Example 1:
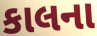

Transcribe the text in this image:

કાલના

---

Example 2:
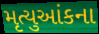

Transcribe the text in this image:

મૃત્યુઆંકના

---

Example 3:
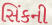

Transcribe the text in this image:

સિંકની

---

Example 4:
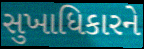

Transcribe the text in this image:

સુખાધિકારને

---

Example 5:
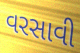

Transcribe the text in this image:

વરસાવી